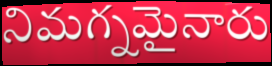
నిమగ్నమైనారు